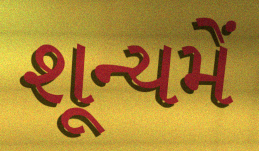
શૂન્યમેં